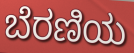
ಬೆರಣಿಯ